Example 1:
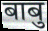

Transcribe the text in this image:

बाबु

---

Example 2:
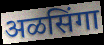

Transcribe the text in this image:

अळसिंगा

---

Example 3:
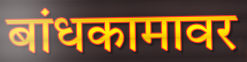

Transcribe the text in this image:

बांधकामावर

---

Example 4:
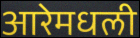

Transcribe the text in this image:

आरेमधली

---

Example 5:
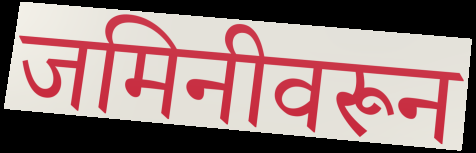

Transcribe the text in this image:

जमिनीवरून